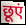
छूएं